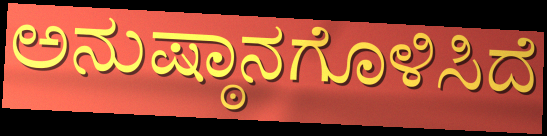
ಅನುಷ್ಠಾನಗೊಳಿಸಿದೆ